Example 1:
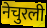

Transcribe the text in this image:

नेचुरली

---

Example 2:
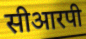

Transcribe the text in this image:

सीआरपी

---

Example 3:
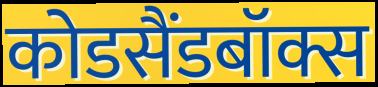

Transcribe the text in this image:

कोडसैंडबॉक्स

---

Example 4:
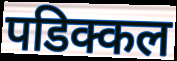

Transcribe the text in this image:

पडिक्कल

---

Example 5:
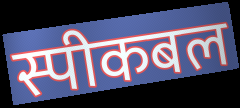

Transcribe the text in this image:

स्पीकबल